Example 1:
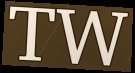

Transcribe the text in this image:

TW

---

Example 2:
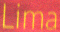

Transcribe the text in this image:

Lima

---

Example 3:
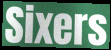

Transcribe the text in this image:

Sixers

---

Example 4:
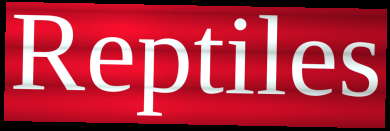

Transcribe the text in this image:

Reptiles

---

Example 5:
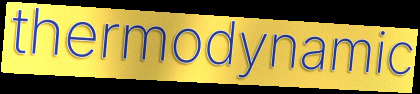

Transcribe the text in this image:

thermodynamic